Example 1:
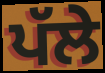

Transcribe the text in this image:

ਪੱਲੇ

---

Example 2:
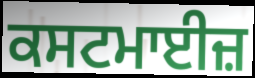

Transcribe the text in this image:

ਕਸਟਮਾਈਜ਼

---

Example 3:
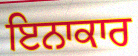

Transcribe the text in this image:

ਇਨਾਕਾਰ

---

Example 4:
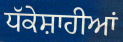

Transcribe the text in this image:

ਧੱਕੇਸ਼ਾਹੀਆਂ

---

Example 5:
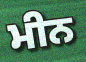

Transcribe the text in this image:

ਮੀਨ